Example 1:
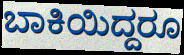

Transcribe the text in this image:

ಬಾಕಿಯಿದ್ದರೂ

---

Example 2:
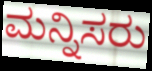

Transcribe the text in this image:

ಮನ್ನಿಸರು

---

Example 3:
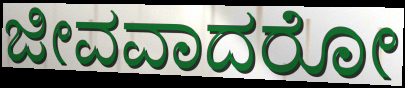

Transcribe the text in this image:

ಜೀವವಾದರೋ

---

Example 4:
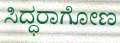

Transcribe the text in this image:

ಸಿದ್ಧರಾಗೋಣ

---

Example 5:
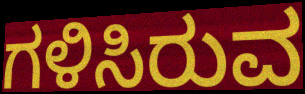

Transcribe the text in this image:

ಗಳಿಸಿರುವ